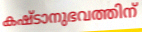
കഷ്ടാനുഭവത്തിന്